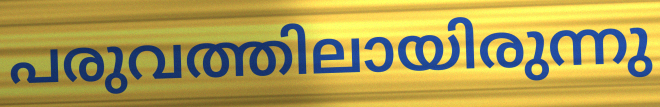
പരുവത്തിലായിരുന്നു